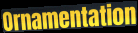
Ornamentation